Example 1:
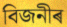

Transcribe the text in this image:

বিজনীৰ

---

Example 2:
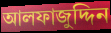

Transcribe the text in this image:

আলফাজুদ্দিন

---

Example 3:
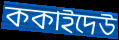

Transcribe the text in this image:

ককাইদেউ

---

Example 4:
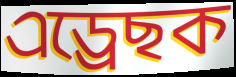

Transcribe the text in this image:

এড্ৰেছক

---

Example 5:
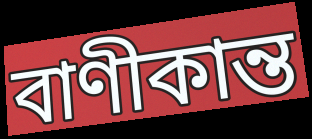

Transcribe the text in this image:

বাণীকান্ত